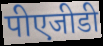
पीएजीडी